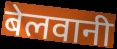
बेलवानी